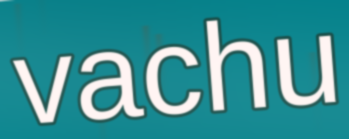
vachu